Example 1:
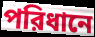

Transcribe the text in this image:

পরিধানে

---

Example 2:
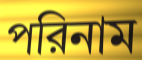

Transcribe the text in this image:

পরিনাম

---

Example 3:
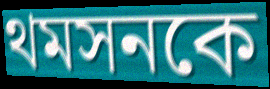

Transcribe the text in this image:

থমসনকে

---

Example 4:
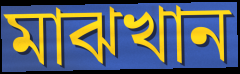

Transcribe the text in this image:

মাঝখান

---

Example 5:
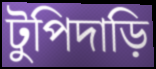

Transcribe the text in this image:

টুপিদাড়ি